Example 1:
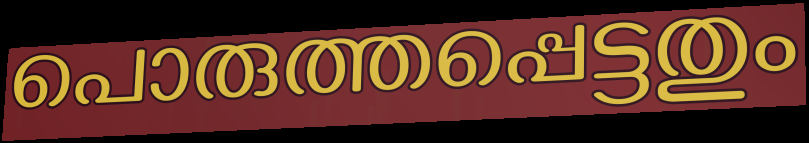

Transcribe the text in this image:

പൊരുത്തപ്പെട്ടതും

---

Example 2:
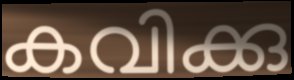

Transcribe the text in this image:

കവിക്കു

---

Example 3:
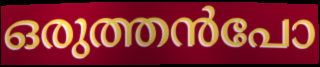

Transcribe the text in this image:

ഒരുത്തൻപോ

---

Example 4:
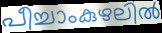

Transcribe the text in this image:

പീച്ചാംകുഴലിൽ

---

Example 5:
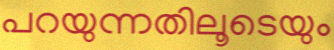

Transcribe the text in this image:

പറയുന്നതിലൂടെയും